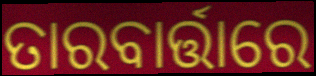
ତାରବାର୍ତ୍ତାରେ